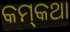
କମ୍‌କଥା